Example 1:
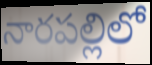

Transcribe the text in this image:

నారపల్లిలో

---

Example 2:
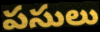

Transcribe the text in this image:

పసులు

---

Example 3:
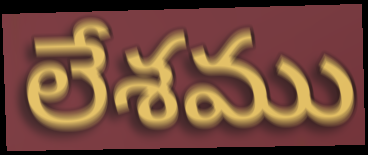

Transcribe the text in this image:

లేశము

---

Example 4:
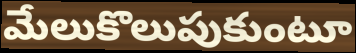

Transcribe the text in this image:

మేలుకొలుపుకుంటూ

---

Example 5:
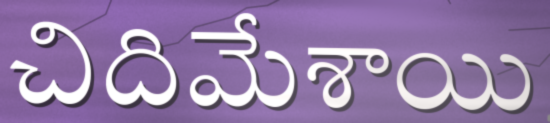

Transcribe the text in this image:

చిదిమేశాయి